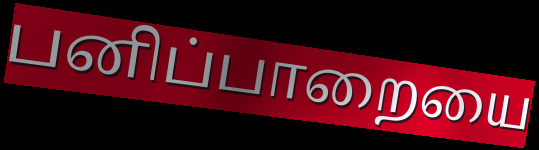
பனிப்பாறையை